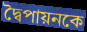
দ্বৈপায়নকে